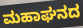
ಮಹಾಘನದ